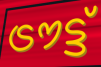
ട്രൗട്ട്